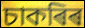
চাকৰিৰ